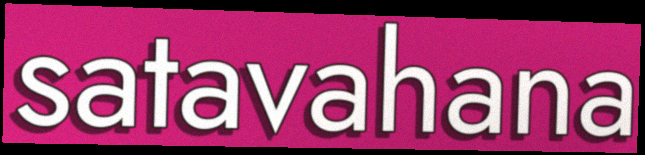
satavahana